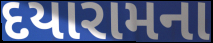
દયારામના